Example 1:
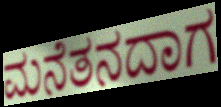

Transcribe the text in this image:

ಮನೆತನದಾಗ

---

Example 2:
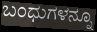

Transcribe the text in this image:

ಬಂಧುಗಳನ್ನೂ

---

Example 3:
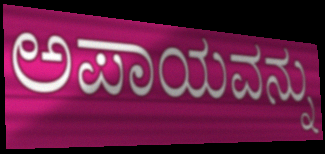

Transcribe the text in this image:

ಅಪಾಯವನ್ನು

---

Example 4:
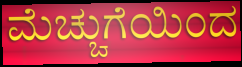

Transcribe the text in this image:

ಮೆಚ್ಚುಗೆಯಿಂದ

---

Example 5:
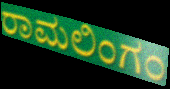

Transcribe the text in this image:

ರಾಮಲಿಂಗಂ